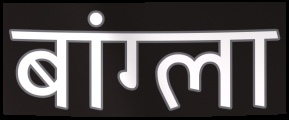
बांग्ला